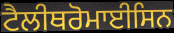
ਟੈਲੀਥਰੋਮਾਈਸਿਨ